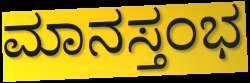
ಮಾನಸ್ತಂಭ